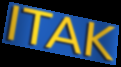
ITAK